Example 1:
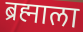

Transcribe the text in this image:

ब्रह्माला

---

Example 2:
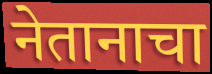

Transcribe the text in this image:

नेतानाचा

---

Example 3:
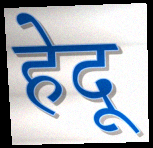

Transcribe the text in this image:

हेदू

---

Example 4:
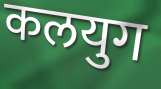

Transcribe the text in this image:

कलयुग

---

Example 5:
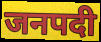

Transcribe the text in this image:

जनपदी